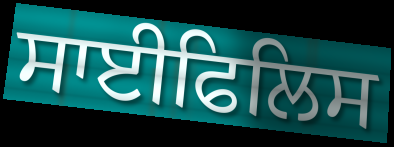
ਸਾਈਫਿਲਿਸ